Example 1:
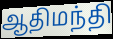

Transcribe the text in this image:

ஆதிமந்தி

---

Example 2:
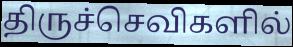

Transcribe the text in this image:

திருச்செவிகளில்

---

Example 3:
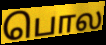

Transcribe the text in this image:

பொல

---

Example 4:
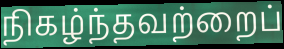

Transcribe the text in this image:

நிகழ்ந்தவற்றைப்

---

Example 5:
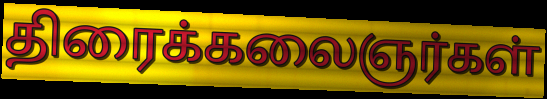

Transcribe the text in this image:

திரைக்கலைஞர்கள்